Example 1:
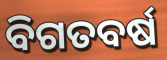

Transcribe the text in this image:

ବିଗତବର୍ଷ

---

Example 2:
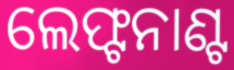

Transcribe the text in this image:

ଲେଫ୍ଟନାଣ୍ଟ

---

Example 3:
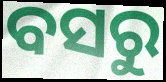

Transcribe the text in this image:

ବସରୁ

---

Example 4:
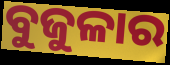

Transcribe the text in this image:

ବୁଜୁଳାର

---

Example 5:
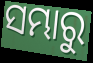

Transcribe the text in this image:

ସମ୍ଭାରୁ